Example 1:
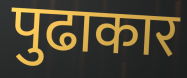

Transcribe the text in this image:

पुढाकार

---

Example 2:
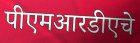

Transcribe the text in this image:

पीएमआरडीएचे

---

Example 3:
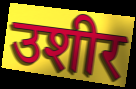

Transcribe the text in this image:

उशीर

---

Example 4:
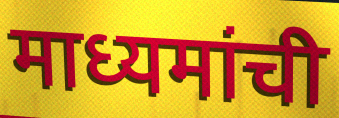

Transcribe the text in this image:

माध्यमांची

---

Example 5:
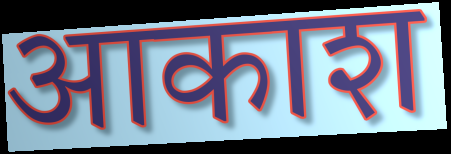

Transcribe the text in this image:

आकाश